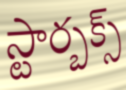
స్టార్బక్స్